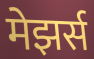
मेझर्स